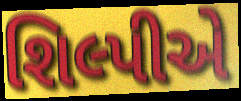
શિલ્પીએ